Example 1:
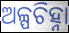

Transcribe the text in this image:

ଅଳ୍ପଚିହ୍ନା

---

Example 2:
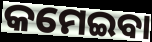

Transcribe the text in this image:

କମେଇବା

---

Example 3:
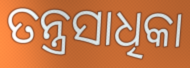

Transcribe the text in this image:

ତନ୍ତ୍ରସାଧିକା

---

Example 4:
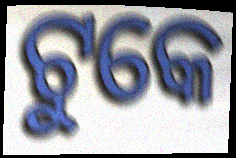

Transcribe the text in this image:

ଟୁକେ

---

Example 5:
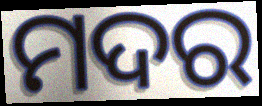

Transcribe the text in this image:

ମଦର